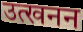
उत्‍खनन